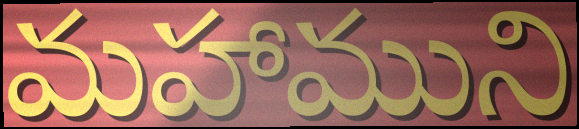
మహాముని